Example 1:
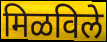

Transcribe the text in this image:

मिळविले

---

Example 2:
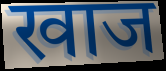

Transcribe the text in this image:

खाज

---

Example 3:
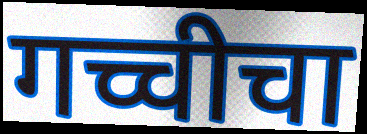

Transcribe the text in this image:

गच्चीचा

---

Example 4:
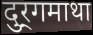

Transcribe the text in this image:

दुर्गमाथा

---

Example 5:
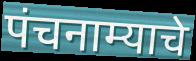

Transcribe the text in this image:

पंचनाम्याचे